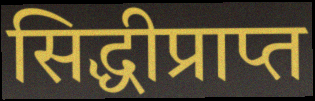
सिद्धीप्राप्त